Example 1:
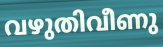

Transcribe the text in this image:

വഴുതിവീണു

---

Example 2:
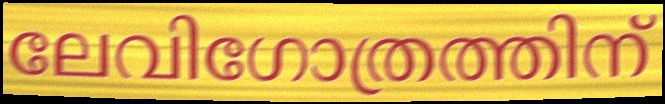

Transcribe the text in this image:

ലേവിഗോത്രത്തിന്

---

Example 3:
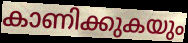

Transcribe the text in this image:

കാണിക്കുകയും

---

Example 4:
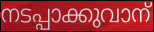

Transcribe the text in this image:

നടപ്പാക്കുവാന്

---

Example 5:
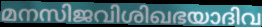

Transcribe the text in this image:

മനസിജവിശിഖഭയാദിവ